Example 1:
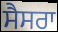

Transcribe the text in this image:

ਸੈਸਰਾ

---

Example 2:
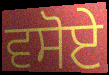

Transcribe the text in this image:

ਵਸੋਏ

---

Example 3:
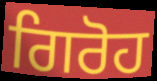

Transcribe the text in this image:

ਗਿਰੋਹ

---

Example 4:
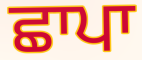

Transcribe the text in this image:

ਛਾਪਾ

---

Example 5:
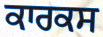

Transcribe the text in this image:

ਕਾਰਕਸ